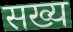
सख्य